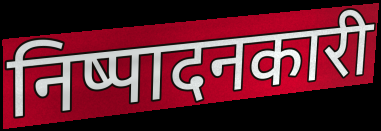
निष्पादनकारी